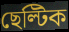
ছেল্টিক